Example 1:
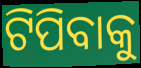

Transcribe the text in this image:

ଟିପିବାକୁ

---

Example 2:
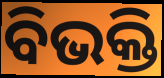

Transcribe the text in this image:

ବିଭକ୍ତି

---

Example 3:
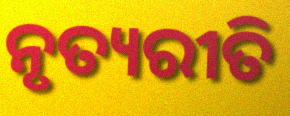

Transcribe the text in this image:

ନୃତ୍ୟରୀତି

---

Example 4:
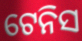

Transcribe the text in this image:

ଟେନିସ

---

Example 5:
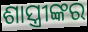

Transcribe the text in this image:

ଶାସ୍ତ୍ରୀଙ୍କର